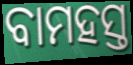
ବାମହସ୍ତ